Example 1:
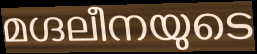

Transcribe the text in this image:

മഗ്ദലീനയുടെ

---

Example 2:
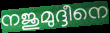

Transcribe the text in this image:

നജുമുദ്ദീനെ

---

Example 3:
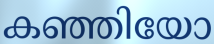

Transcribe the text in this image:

കഞ്ഞിയോ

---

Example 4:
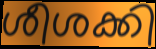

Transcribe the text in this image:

ശീശക്കി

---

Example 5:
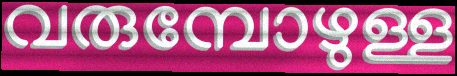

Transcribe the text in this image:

വരുമ്പോഴുള്ള